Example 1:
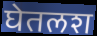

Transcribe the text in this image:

घेतलश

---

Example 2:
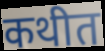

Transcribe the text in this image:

कथीत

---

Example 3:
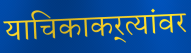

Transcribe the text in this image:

याचिकाकर्त्यांवर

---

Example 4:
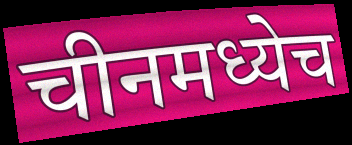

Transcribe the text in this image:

चीनमध्येच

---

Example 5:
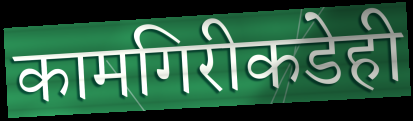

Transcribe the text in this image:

कामगिरीकडेही